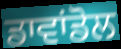
ਡਾਵਾਂਡੋਲ